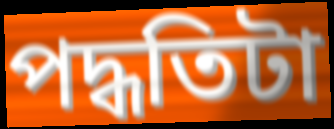
পদ্ধতিটা